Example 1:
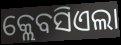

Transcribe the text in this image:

କ୍ଲେବସିଏଲା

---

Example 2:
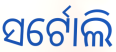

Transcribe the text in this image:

ସର୍ଟୋଲି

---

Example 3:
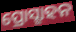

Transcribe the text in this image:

ପ୍ରୋସ୍ଛାହନ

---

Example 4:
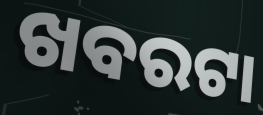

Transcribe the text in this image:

ଖବରଟା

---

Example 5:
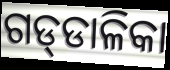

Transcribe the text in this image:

ଗଡ୍‍ଡାଳିକା